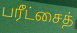
பரீட்சைத்